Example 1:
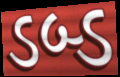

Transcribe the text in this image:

ડબ્ડ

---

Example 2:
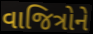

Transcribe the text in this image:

વાજિત્રોને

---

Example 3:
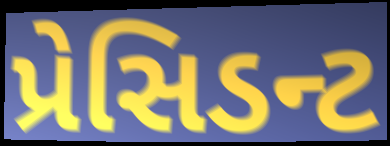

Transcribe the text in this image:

પ્રેસિડન્ટ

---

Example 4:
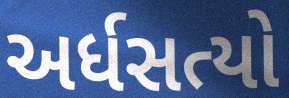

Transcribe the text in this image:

અર્ધસત્યો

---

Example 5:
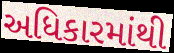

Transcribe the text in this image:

અધિકારમાંથી